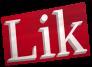
Lik